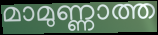
മാമുണ്ണാത്ത